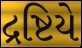
દ્રષ્ટિયે